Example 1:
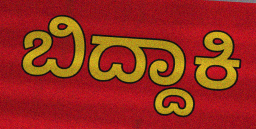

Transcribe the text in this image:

ಬಿದ್ದಾಕಿ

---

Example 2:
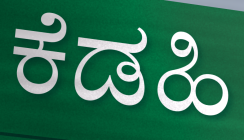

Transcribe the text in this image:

ಕೆಡಹಿ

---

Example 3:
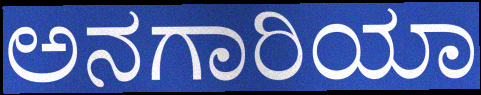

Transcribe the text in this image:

ಅನಗಾರಿಯಾ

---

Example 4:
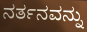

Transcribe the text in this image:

ನರ್ತನವನ್ನು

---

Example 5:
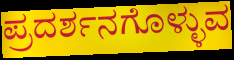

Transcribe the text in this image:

ಪ್ರದರ್ಶನಗೊಳ್ಳುವ